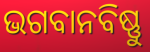
ଭଗବାନବିଷ୍ଣୁ